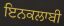
ਇਨਕਲਾਬੀ